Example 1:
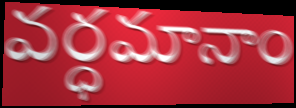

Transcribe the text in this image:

వర్ధమానాం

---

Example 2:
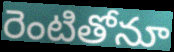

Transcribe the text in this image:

రెంటితోనూ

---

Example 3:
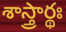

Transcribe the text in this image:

శాస్త్రార్థః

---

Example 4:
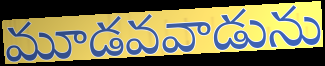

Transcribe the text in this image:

మూడవవాడును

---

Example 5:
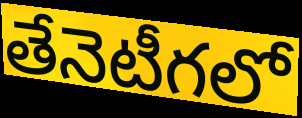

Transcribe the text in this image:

తేనెటీగలో